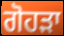
ਗੋਹੜਾ